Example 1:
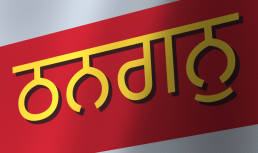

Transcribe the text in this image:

ਠਨਗਨੁ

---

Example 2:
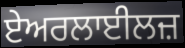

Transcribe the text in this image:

ਏਅਰਲਾਈਲਜ਼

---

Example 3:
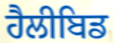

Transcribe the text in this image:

ਹੈਲੀਬਿਡ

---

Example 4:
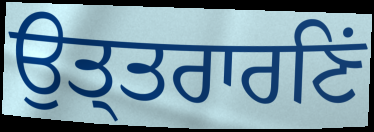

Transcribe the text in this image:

ਉਤ੍ਤਰਾਰਣਿਂ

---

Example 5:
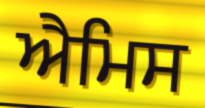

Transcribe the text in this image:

ਐਮਿਸ